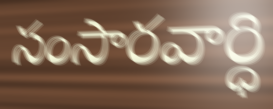
సంసారవార్ధి